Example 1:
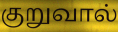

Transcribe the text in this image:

குறுவால்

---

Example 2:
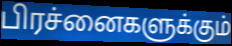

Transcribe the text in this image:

பிரச்னைகளுக்கும்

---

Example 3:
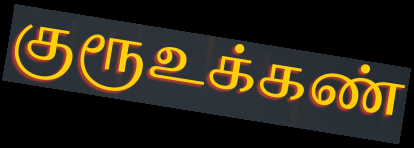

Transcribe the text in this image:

குரூஉக்கண்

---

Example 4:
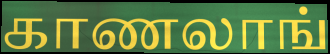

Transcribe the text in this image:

காணலாங்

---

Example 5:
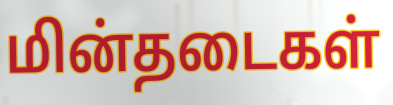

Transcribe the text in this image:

மின்தடைகள்